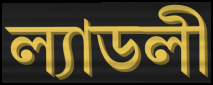
ল্যাডলী